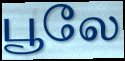
பூலே